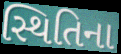
સ્થિતિના